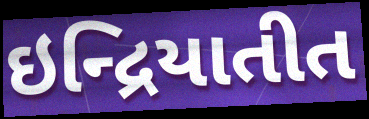
ઇન્દ્રિયાતીત